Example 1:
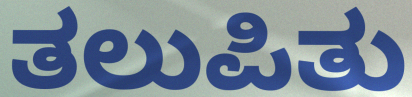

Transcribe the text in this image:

ತಲುಪಿತು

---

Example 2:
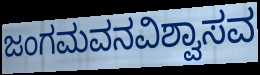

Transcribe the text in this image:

ಜಂಗಮವನವಿಶ್ವಾಸವ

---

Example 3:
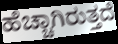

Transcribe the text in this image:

ಹೆಚ್ಚಾಗಿರುತ್ತದೆ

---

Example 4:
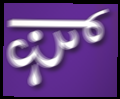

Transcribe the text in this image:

ಘ್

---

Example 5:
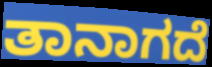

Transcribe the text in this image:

ತಾನಾಗದೆ